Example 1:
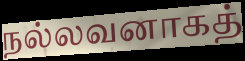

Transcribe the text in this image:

நல்லவனாகத்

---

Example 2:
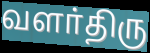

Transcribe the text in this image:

வளர்திரு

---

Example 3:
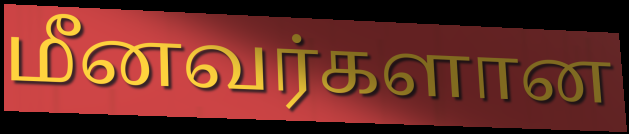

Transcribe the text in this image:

மீனவர்களான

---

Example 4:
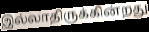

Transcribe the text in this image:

இல்லாதிருக்கின்றது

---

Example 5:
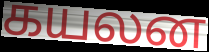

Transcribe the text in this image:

கயலன